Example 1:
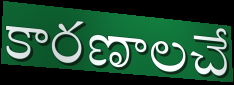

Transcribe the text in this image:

కారణాలచే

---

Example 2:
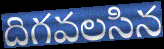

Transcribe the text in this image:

దిగవలసిన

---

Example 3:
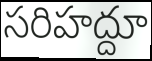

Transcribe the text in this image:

సరిహద్దూ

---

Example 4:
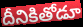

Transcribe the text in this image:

దీనికితోడూ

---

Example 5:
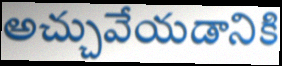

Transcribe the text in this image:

అచ్చువేయడానికి